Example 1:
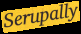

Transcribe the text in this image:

Serupally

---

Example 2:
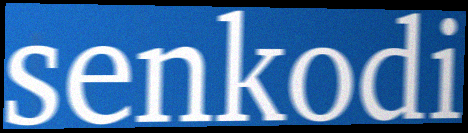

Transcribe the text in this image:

senkodi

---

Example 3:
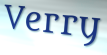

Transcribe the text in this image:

Verry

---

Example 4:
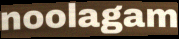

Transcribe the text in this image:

noolagam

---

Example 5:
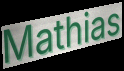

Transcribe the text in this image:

Mathias